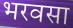
भरवसा